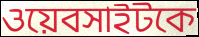
ওয়েবসাইটকে